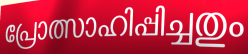
പ്രോത്സാഹിപ്പിച്ചതും